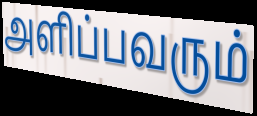
அளிப்பவரும்